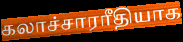
கலாச்சாரரீதியாக